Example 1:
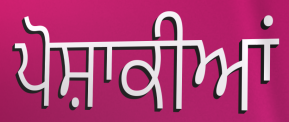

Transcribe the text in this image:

ਪੋਸ਼ਾਕੀਆਂ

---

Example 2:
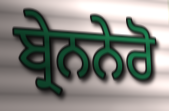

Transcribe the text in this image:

ਬ੍ਰੇਨਨੇਰੋ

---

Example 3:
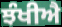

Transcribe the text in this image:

ਝੰਖੀਐ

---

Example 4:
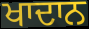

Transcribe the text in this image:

ਖਾਦਾਨ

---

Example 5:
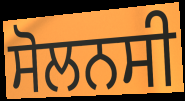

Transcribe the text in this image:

ਸੋਲਨਸੀ